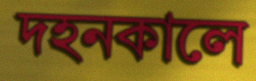
দহনকালে